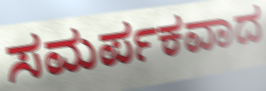
ಸಮರ್ಪಕವಾದ